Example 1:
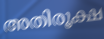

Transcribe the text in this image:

അതിരൂക്ഷ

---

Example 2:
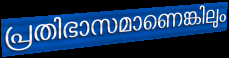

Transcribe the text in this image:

പ്രതിഭാസമാണെങ്കിലും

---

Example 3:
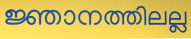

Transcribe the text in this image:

ജ്ഞാനത്തിലല്ല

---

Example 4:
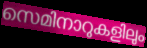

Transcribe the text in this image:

സെമിനാറുകളിലും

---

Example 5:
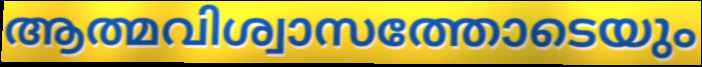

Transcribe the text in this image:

ആത്മവിശ്വാസത്തോടെയും